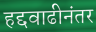
हद्दवाढीनंतर